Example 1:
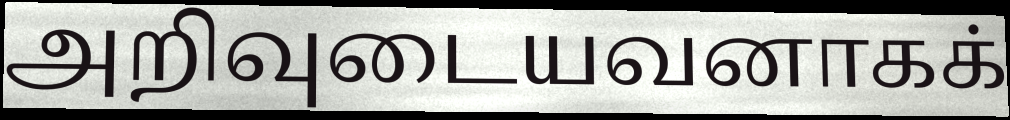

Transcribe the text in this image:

அறிவுடையவனாகக்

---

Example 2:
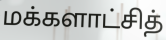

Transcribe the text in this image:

மக்களாட்சித்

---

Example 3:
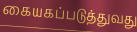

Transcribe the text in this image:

கையகப்படுத்துவது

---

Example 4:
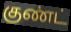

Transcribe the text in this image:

குண்ட்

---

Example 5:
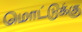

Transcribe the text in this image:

மொட்டுக்கு